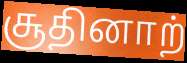
சூதினாற்